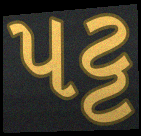
પટ્ટ